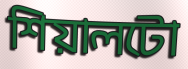
শিয়ালটো